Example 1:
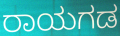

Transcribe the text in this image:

ರಾಯಗಡ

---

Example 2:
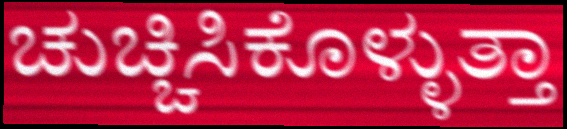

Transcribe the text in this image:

ಚುಚ್ಚಿಸಿಕೊಳ್ಳುತ್ತಾ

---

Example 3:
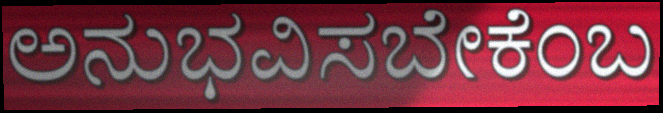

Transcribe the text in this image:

ಅನುಭವಿಸಬೇಕೆಂಬ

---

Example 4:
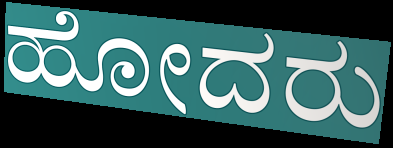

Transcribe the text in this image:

ಹೋದರು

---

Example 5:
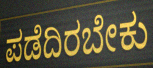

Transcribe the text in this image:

ಪಡೆದಿರಬೇಕು